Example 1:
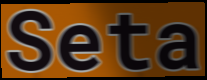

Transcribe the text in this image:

Seta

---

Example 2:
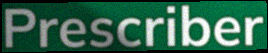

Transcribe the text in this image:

Prescriber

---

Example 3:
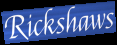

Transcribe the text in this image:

Rickshaws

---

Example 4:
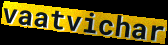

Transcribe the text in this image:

vaatvichar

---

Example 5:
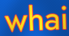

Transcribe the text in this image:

whai